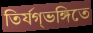
তির্যগ্ভঙ্গিতে